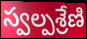
స్వల్పశ్రేణి